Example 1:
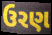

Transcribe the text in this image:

ઉરણ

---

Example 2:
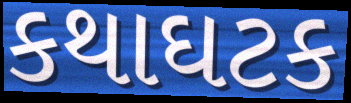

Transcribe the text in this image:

કથાઘટક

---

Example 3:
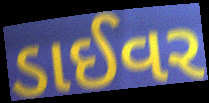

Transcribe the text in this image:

ડાઈવર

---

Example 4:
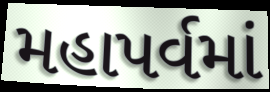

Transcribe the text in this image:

મહાપર્વમાં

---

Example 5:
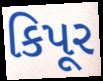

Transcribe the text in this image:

કિપૂર